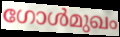
ഗോൾമുഖം